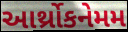
આર્થ્રોકનેમમ